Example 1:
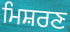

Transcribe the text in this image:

ਮਿਸ਼ਰਣ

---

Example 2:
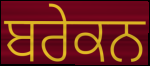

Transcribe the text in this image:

ਬਰੇਕਨ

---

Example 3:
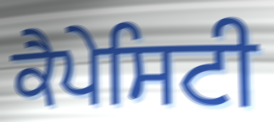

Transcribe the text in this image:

ਕੈਪੇਸਿਟੀ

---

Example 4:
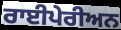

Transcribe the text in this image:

ਰਾਈਪੇਰੀਅਨ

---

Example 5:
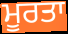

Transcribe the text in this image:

ਮੂਰਤਾ